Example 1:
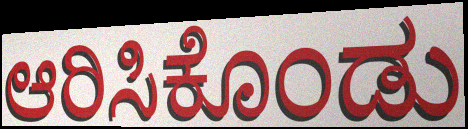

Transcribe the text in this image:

ಆರಿಸಿಕೊಂಡು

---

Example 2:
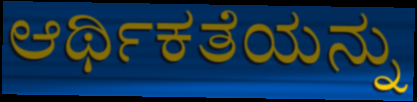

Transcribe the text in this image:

ಆರ್ಥಿಕತೆಯನ್ನು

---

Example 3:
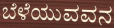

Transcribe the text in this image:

ಬೆಳೆಯುವವನ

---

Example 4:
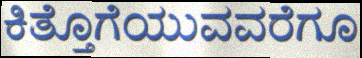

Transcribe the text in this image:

ಕಿತ್ತೊಗೆಯುವವರೆಗೂ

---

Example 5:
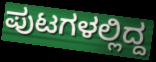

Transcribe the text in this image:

ಪುಟಗಳಲ್ಲಿದ್ದ